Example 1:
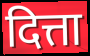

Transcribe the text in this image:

दित्ता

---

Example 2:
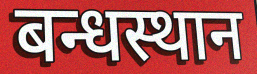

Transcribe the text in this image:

बन्धस्थान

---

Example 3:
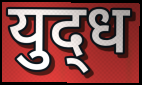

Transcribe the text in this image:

युद्‍ध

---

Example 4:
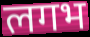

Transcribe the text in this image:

लगभ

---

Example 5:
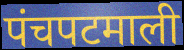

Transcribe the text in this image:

पंचपटमाली